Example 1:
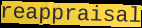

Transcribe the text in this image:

reappraisal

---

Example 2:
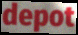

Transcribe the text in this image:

depot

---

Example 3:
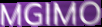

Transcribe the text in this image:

MGIMO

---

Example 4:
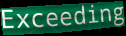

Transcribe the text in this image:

Exceeding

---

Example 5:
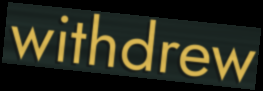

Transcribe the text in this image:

withdrew